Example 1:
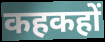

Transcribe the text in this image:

कहकहों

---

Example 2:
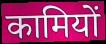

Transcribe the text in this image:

कामियों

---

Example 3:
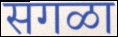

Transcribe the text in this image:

सगळा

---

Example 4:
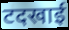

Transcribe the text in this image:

टदखाई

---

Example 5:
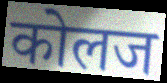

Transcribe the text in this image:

कोलज